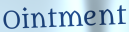
Ointment